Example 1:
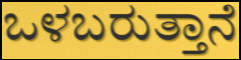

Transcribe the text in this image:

ಒಳಬರುತ್ತಾನೆ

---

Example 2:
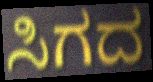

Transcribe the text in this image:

ಸಿಗದ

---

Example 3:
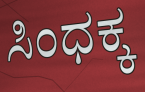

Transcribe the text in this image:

ಸಿಂಧಕ್ಕ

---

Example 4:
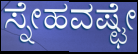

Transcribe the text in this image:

ಸ್ನೇಹವಷ್ಟೇ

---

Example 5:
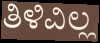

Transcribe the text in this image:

ತಿಳಿವಿಲ್ಲ